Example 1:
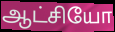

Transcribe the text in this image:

ஆட்சியோ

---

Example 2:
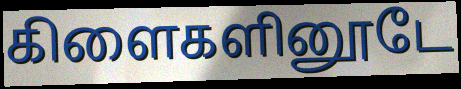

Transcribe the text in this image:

கிளைகளினூடே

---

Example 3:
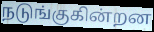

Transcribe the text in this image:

நடுங்குகின்றன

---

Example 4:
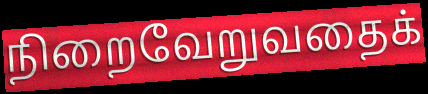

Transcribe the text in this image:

நிறைவேறுவதைக்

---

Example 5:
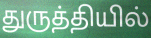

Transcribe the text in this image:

துருத்தியில்